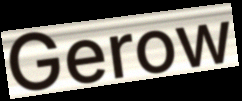
Gerow